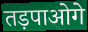
तड़पाओगे